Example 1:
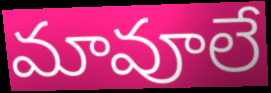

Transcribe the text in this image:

మావూలే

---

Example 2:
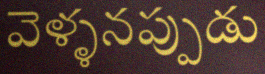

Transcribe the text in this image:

వెళ్ళనప్పుడు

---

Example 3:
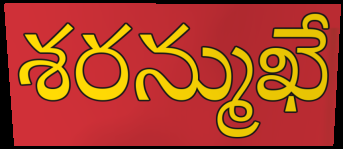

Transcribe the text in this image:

శరన్ముఖే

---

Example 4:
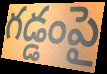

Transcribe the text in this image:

గడ్డంపై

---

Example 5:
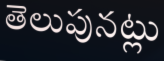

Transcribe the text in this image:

తెలుపునట్లు